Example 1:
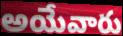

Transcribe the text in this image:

అయేవారు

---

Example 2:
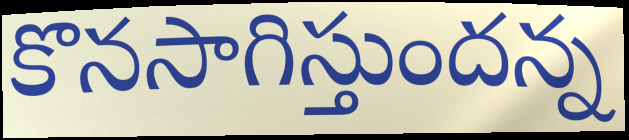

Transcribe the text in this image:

కొనసాగిస్తుందన్న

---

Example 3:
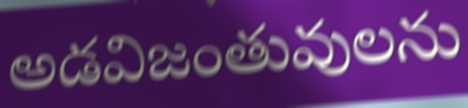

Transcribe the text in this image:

అడవిజంతువులను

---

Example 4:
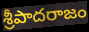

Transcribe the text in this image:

శ్రీపాదరాజం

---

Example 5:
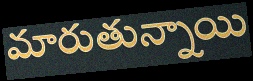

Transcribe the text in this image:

మారుతున్నాయి